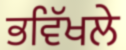
ਭਵਿੱਖਲੇ